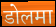
डोलमा